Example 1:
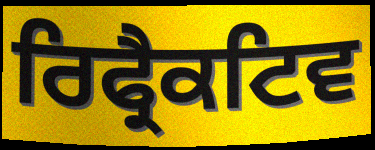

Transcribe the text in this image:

ਰਿਫ੍ਰੈਕਟਿਵ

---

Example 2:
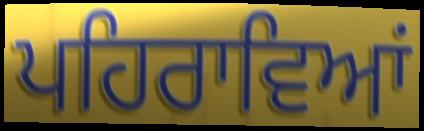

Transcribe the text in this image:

ਪਹਿਰਾਵਿਆਂ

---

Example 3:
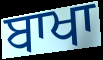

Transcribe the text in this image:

ਬਾਖਾ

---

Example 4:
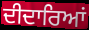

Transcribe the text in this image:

ਦੀਦਾਰਿਆਂ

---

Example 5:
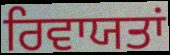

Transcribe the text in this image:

ਰਿਵਾਯਤਾਂ